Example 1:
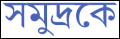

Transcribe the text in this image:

সমুদ্রকে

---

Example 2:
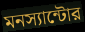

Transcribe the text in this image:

মনস্যান্টোর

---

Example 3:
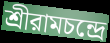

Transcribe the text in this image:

শ্রীরামচন্দ্রে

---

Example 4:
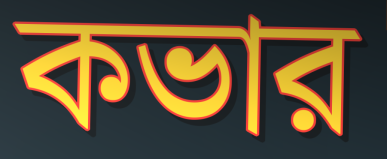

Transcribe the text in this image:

কভার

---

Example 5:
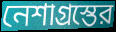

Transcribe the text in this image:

নেশাগ্রস্তের